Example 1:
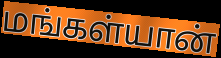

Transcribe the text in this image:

மங்கள்யான்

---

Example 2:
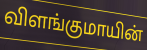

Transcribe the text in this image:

விளங்குமாயின்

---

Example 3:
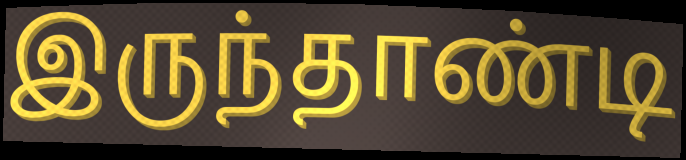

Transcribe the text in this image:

இருந்தாண்டி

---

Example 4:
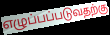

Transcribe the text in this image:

எழுப்பப்படுவதற்கு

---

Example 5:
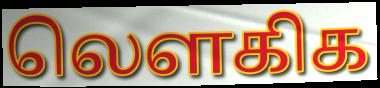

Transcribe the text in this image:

லௌகிக